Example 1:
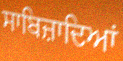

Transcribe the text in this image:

ਸਾਬਿਜ਼ਾਦਿਆਂ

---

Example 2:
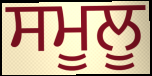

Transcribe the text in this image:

ਸਮੂਲੂ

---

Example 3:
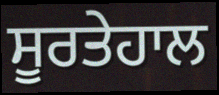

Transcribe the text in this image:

ਸੂਰਤੇਹਾਲ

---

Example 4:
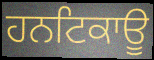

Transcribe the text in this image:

ਹਨਟਿਕਾਊ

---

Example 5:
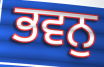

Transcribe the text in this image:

ਭਵਨੁ